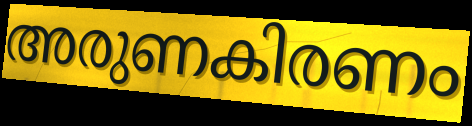
അരുണകിരണം